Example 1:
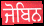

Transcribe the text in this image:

ਜੋਬਿਨ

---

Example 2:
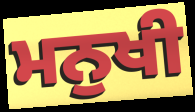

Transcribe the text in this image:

ਮਨੁਖੀ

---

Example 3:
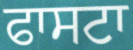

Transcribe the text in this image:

ਫਾਸਟਾ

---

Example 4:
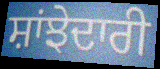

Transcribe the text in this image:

ਸ਼ਾਂਝੇਦਾਰੀ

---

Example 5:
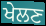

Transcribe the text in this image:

ਖੇਲਣ